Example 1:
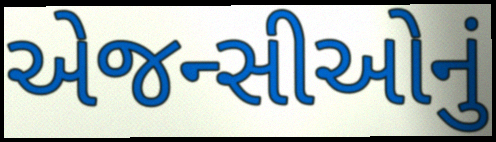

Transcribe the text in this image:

એજન્સીઓનું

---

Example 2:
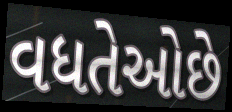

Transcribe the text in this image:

વધતેઓછે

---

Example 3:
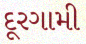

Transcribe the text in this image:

દૂરગામી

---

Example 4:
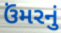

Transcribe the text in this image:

ઉંમરનું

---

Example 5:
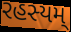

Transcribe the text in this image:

રહસ્યમ્